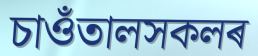
চাওঁতালসকলৰ